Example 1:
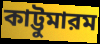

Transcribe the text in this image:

কাট্টুমারম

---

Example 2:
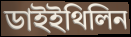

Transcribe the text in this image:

ডাইইথিলিন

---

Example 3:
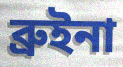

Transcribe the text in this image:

ব্রুইনা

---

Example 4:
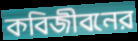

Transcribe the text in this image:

কবিজীবনের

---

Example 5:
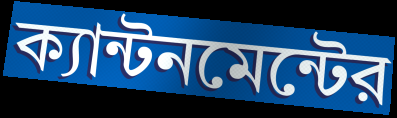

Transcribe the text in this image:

ক্যান্টনমেন্টের